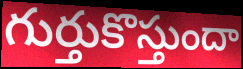
గుర్తుకొస్తుందా